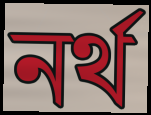
নৰ্থ